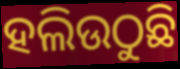
ହଲିଉଠୁଛି